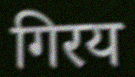
गिरय